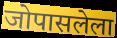
जोपासलेला